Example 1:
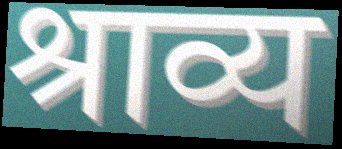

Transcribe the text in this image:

श्राव्य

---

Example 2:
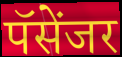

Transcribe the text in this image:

पॅसेंजर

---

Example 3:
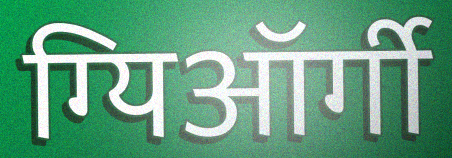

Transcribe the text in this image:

ग्यिऑर्गी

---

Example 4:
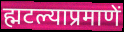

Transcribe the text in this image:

ह्मटल्याप्रमाणें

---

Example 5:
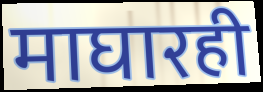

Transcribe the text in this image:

माघारही